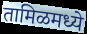
तामिळमध्ये